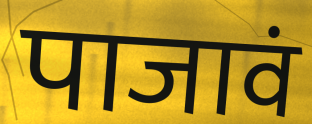
पाजावं